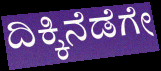
ದಿಕ್ಕಿನೆಡೆಗೇ